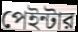
পেইন্টার